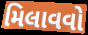
મિલાવવો